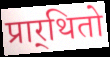
प्रार्थितो